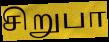
சிறுபா